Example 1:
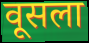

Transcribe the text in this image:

वूसला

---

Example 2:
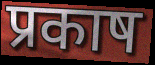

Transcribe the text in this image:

प्रकाष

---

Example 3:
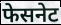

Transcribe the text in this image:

फेसनेट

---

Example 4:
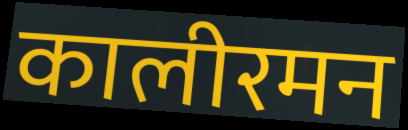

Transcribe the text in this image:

कालीरमन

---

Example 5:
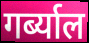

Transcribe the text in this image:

गर्ब्याल